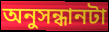
অনুসন্ধানটা